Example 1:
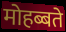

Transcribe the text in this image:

मोहब्बते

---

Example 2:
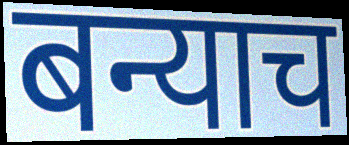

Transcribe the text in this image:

बन्याच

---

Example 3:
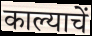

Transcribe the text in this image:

काल्याचें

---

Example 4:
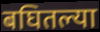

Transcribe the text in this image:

बघितल्या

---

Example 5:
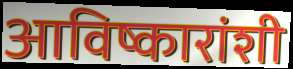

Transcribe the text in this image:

आविष्कारांशी